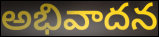
అభివాదన